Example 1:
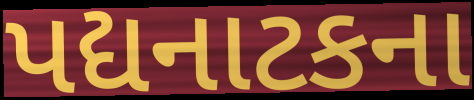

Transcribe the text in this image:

પદ્યનાટકના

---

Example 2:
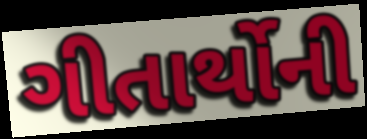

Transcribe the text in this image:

ગીતાર્થોની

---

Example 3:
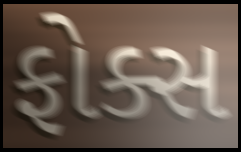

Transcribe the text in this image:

ફોક્સ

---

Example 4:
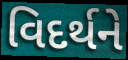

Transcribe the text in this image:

વિદર્થને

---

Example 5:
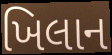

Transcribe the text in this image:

ખિલાન